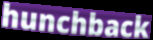
hunchback